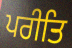
ਪਰੀਤਿ